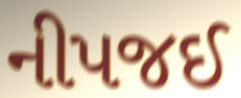
નીપજઈ